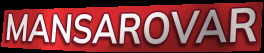
MANSAROVAR